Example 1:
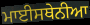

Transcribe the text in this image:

ਮਾਈਸਥੇਨੀਆ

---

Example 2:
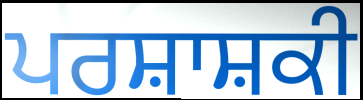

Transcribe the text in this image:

ਪਰਸ਼ਾਸ਼ਕੀ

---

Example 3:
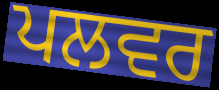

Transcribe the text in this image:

ਪਲਵਰ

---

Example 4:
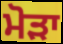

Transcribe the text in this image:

ਮੋੜਾ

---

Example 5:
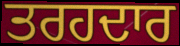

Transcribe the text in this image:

ਤਰਹਦਾਰ